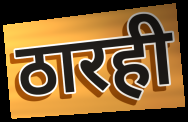
ठारही